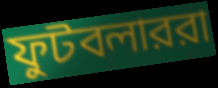
ফুটবলাররা